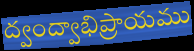
ద్వంద్వాభిప్రాయము